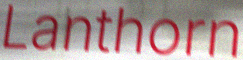
Lanthorn